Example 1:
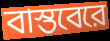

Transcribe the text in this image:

বাস্তবেরে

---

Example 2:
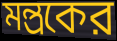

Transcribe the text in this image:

মন্ত্রকের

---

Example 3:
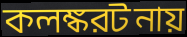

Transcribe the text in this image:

কলঙ্করটনায়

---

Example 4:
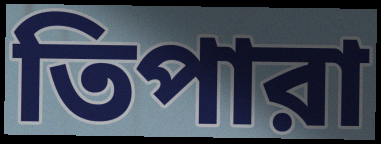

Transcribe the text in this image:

তিপারা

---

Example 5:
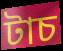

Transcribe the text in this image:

টাচ